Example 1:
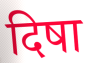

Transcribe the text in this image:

दिषा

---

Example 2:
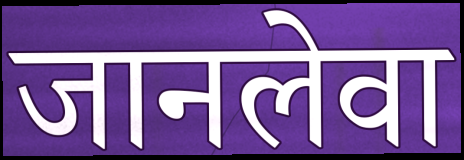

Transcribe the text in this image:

जानलेवा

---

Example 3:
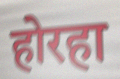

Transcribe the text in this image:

होरहा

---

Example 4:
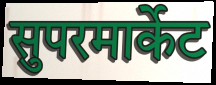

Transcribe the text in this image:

सुपरमार्केट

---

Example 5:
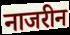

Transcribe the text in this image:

नाजरीन